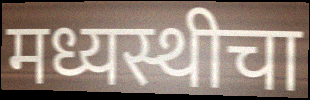
मध्यस्थीचा